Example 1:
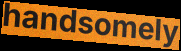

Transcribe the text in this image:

handsomely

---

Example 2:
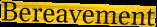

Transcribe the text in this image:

Bereavement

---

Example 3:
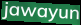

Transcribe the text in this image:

jawayun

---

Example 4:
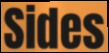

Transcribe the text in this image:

Sides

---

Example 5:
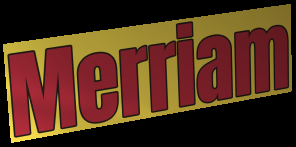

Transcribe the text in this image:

Merriam